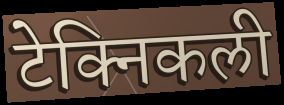
टेक्निकली